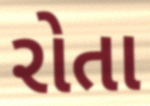
રોતા